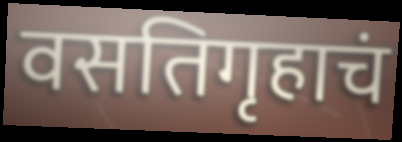
वसतिगृहाचं